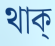
থাক্